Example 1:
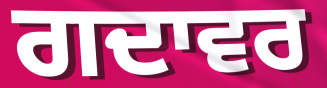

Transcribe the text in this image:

ਗਦਾਵਰ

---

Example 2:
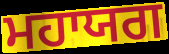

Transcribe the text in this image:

ਮਹਾਯਗ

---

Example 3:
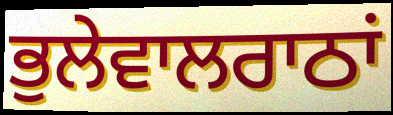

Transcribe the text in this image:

ਭੁਲੇਵਾਲਰਾਠਾਂ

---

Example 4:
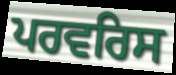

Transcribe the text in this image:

ਪਰਵਰਿਸ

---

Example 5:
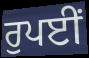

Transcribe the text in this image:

ਰੁਪਈਂ